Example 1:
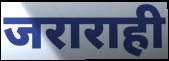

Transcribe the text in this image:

जराराही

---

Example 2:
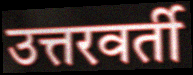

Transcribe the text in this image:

उत्तरवर्ती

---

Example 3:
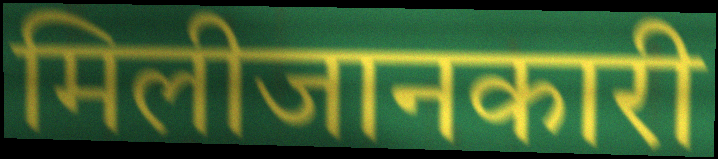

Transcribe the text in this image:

मिलीजानकारी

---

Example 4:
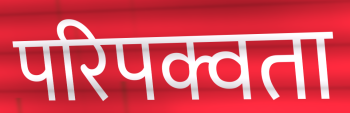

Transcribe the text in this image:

परिपक्वता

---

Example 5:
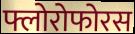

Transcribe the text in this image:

फ्लोरोफोरस